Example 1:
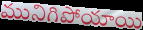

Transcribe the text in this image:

మునిగిపోయాయి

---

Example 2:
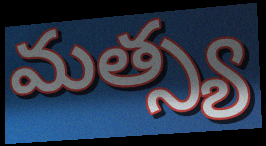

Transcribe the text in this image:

మత్స్య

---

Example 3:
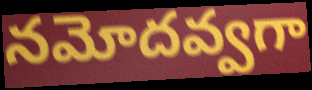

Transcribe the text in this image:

నమోదవ్వగా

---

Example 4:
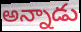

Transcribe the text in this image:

అన్నాడు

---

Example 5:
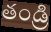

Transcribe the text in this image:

తండ్రి